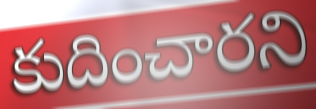
కుదించారని